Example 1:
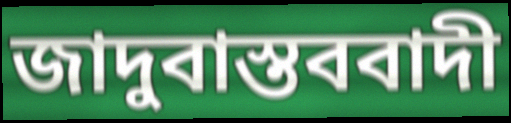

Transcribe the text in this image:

জাদুবাস্তববাদী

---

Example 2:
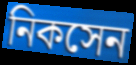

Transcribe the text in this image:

নিকসেন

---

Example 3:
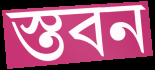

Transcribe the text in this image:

স্তবন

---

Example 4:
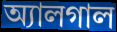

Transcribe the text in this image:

অ্যালগাল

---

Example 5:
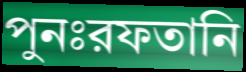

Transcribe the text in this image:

পুনঃরফতানি